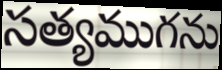
సత్యముగను